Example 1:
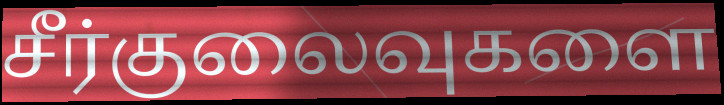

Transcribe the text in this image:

சீர்குலைவுகளை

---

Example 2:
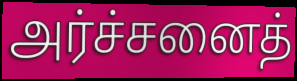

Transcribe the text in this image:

அர்ச்சனைத்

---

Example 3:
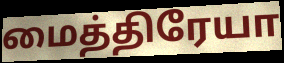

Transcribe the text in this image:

மைத்திரேயா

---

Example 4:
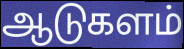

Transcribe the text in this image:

ஆடுகளம்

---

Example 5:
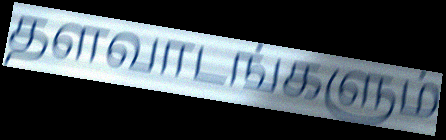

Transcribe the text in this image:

தளவாடங்களும்